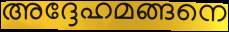
അദ്ദേഹമങ്ങനെ